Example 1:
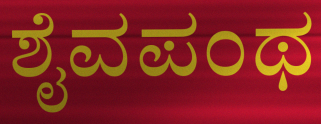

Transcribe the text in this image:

ಶೈವಪಂಥ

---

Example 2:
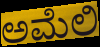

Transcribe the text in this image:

ಅಮೆಲಿ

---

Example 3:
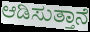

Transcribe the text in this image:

ಆಡಿಸುತ್ತಾನೆ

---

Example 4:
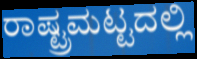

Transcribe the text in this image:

ರಾಷ್ಟ್ರಮಟ್ಟದಲ್ಲಿ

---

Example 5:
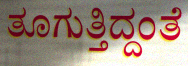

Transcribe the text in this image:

ತೂಗುತ್ತಿದ್ದಂತೆ